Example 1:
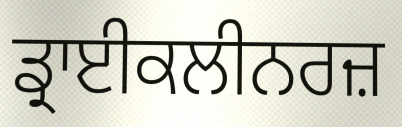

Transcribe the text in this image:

ਡ੍ਰਾਈਕਲੀਨਰਜ਼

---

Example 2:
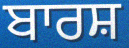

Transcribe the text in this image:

ਬਾਰਸ਼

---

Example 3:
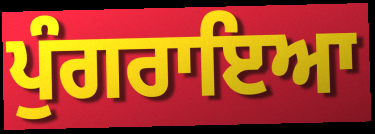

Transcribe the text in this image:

ਪੁੰਗਰਾਇਆ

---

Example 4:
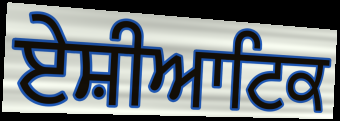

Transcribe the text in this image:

ਏਸ਼ੀਆਟਿਕ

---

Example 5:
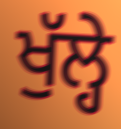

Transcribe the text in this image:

ਖੁੱਲ੍ਹੇ